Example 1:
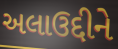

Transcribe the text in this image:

અલાઉદ્દીને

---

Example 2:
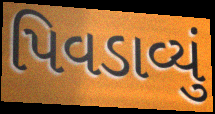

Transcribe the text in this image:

પિવડાવ્યું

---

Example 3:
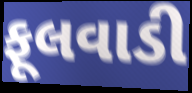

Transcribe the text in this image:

ફૂલવાડી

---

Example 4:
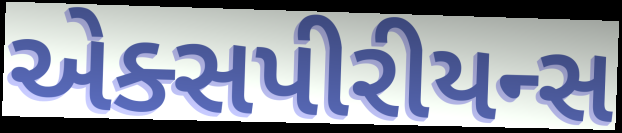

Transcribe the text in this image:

એક્સપીરીયન્સ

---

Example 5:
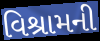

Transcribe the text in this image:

વિશ્રામની